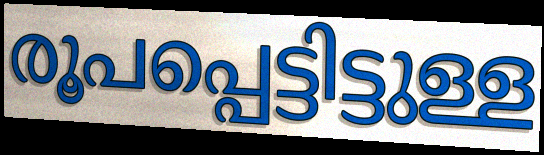
രൂപപ്പെട്ടിട്ടുള്ള